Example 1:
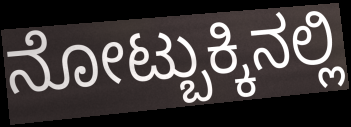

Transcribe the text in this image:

ನೋಟ್ಬುಕ್ಕಿನಲ್ಲಿ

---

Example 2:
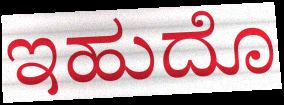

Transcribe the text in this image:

ಇಹುದೊ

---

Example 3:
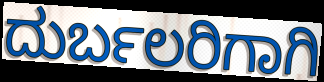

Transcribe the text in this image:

ದುರ್ಬಲರಿಗಾಗಿ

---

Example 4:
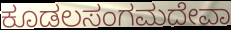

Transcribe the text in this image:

ಕೂಡಲಸಂಗಮದೇವಾ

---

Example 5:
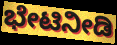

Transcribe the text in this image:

ಭೇಟಿನೀಡಿ